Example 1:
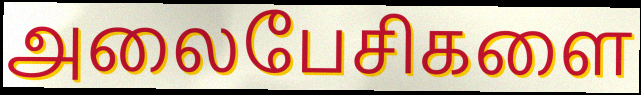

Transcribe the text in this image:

அலைபேசிகளை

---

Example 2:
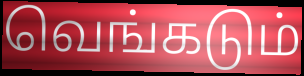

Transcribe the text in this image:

வெங்கடும்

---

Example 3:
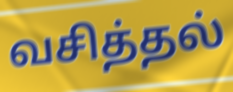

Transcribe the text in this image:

வசித்தல்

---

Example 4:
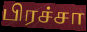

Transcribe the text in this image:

பிரச்சா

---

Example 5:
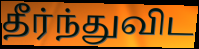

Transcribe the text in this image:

தீர்ந்துவிட